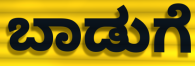
ಬಾಡುಗೆ